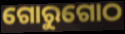
ଗୋରୁଗୋଠ